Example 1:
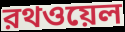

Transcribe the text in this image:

রথওয়েল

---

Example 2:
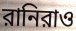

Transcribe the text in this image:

রানিরাও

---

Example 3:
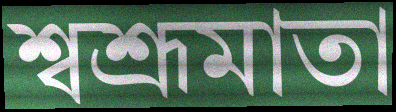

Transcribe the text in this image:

শ্বশ্রূমাতা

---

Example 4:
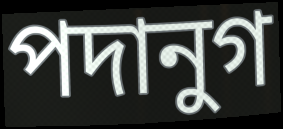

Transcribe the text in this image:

পদানুগ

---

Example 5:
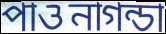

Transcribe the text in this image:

পাওনাগন্ডা